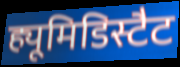
ह्यूमिडिस्टैट